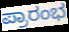
ಪ್ರಾರಂಭ